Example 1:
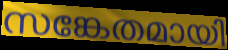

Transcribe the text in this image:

സങ്കേതമായി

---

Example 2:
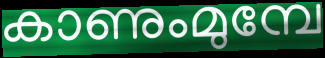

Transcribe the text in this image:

കാണുംമുമ്പേ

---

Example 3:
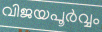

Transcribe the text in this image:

വിജയപൂർവ്വം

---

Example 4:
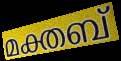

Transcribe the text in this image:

മക്തബ്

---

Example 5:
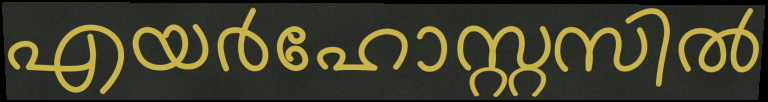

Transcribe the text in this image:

എയർഹോസ്റ്റസിൽ